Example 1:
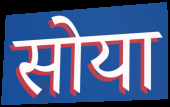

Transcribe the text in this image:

सोया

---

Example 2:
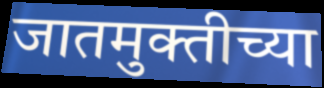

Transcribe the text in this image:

जातमुक्तीच्या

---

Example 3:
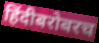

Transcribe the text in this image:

हिंदीबरोबरच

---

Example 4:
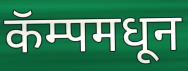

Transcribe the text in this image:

कॅम्पमधून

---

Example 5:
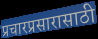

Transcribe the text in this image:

प्रचारप्रसारासाठी